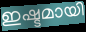
ഇഷ്ടമായി